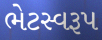
ભેટસ્વરૂપ